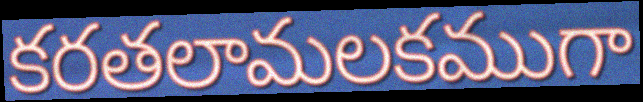
కరతలామలకముగా